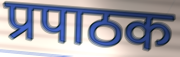
प्रपाठक